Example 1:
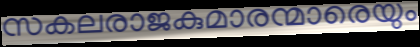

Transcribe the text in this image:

സകലരാജകുമാരന്മാരെയും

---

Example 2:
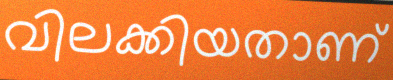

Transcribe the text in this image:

വിലക്കിയതാണ്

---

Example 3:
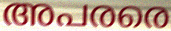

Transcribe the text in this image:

അപരരെ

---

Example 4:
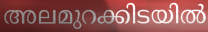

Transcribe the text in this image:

അലമുറക്കിടയിൽ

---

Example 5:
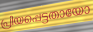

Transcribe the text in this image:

പ്രിയപ്പെട്ടതായോ